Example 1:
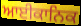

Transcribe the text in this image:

ਆਈਕਾਨਿਕ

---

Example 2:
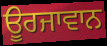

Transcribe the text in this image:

ਊਰਜਾਵਾਨ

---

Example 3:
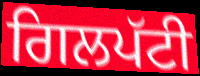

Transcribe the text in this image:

ਗਿਲਪੱਟੀ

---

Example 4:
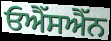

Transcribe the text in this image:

ਓਐੱਸਐੱਨ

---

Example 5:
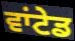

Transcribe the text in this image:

ਵਾਂਟੇਡ